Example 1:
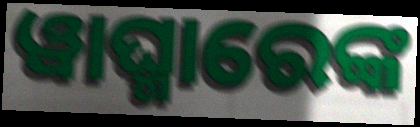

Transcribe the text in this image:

ୱାଘ୍ମାରେଙ୍କ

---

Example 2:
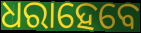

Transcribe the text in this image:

ଧରାହେବେ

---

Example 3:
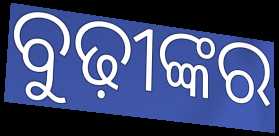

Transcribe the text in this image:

ବୁଢ଼ୀଙ୍କର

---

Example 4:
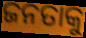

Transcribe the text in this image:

ଜନତାକୁ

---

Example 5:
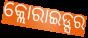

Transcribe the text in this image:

କ୍ଲୋରାଇଡ୍ସର